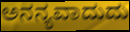
ಅನನ್ಯವಾದುದು